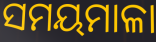
ସମୟମାଳା